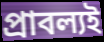
প্রাবল্যই